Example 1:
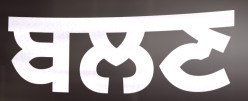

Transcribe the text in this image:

ਬਲਣ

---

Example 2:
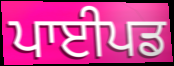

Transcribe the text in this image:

ਪਾਈਪਡ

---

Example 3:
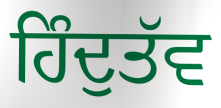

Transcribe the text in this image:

ਹਿੰਦੁਤੱਵ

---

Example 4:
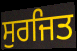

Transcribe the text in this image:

ਸੁਰਜਿਤ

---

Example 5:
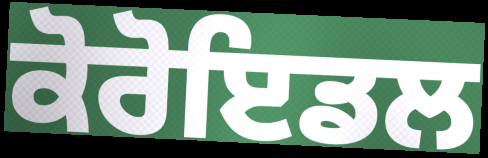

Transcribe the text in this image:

ਕੋਰੋਇਡਲ